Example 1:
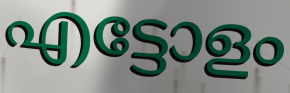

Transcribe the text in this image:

എട്ടോളം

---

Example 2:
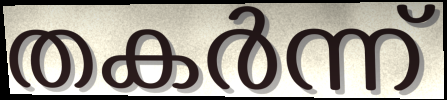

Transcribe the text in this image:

തകർന്ന്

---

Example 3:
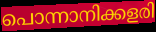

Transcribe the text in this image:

പൊന്നാനിക്കളരി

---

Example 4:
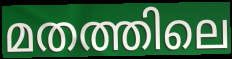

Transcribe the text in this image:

മതത്തിലെ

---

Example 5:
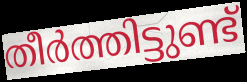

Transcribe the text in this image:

തീർത്തിട്ടുണ്ട്